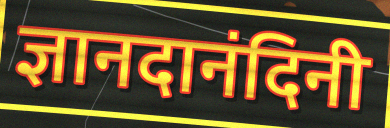
ज्ञानदानंदिनी